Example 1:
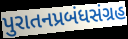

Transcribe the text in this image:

પુરાતનપ્રબંધસંગ્રહ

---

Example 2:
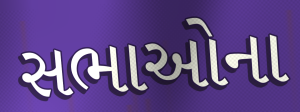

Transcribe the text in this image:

સભાઓના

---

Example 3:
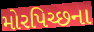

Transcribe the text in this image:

મોરપિચ્છના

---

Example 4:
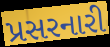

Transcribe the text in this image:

પ્રસરનારી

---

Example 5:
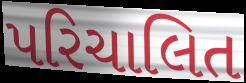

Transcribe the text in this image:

પરિચાલિત